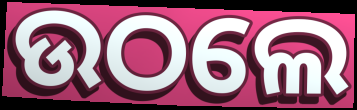
ଉଠଲେ